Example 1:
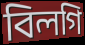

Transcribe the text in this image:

বিলগি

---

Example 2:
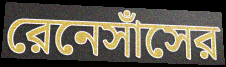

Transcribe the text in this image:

রেনেসাঁসের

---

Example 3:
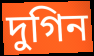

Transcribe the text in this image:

দুগিন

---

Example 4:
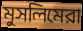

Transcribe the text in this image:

মুসলিমেরা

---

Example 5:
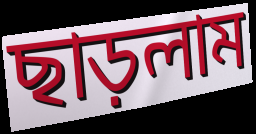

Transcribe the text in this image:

ছাড়লাম